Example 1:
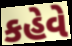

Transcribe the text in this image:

કહેવે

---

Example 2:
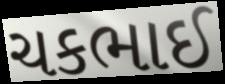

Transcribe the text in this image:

ચકભાઈ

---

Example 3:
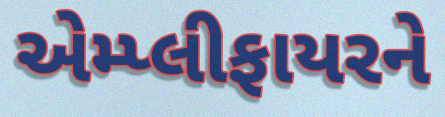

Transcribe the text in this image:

એમ્પ્લીફાયરને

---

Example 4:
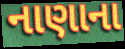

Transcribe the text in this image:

નાણાના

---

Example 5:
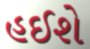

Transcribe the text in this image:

હઈશે